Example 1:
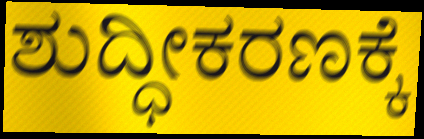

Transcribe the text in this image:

ಶುದ್ಧೀಕರಣಕ್ಕೆ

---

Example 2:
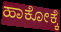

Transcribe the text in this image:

ಹಾಕೋಕ್ಕೆ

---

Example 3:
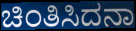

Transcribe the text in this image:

ಚಿಂತಿಸಿದನಾ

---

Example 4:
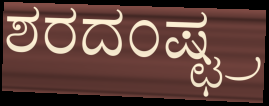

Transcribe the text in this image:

ಶರದಂಷ್ಟ್ರ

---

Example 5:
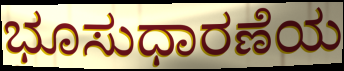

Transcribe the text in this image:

ಭೂಸುಧಾರಣೆಯ